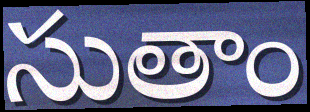
సుతాం